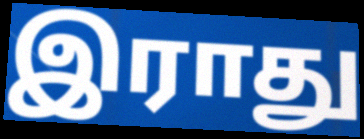
இராது